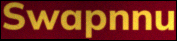
Swapnnu